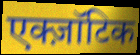
एक्ज़ॉटिक